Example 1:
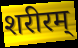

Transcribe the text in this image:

शरीरम्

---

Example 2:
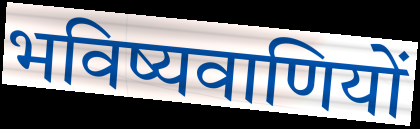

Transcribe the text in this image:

भविष्यवाणियों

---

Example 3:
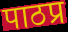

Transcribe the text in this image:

पाठप्र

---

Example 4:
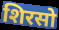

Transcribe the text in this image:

शिरसो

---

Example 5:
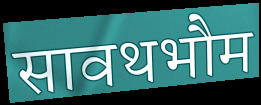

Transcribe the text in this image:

सावथभौम